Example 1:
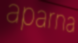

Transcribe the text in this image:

aparna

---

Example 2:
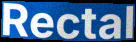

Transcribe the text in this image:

Rectal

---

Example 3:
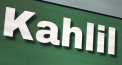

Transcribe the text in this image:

Kahlil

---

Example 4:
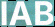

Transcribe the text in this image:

IAB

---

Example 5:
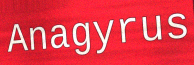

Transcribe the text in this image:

Anagyrus